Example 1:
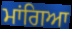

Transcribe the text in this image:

ਮਾਂਗਿਆ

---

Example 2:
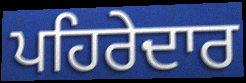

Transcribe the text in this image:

ਪਹਿਰੇਦਾਰ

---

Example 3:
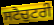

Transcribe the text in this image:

ਸਟੈਚੁਟਰੀ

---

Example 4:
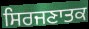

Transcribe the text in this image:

ਸਿਰਜਣਾਤਕ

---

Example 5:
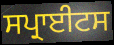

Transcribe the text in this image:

ਸਪ੍ਰਾਈਟਸ